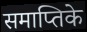
समाप्तिके